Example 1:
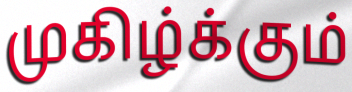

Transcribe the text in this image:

முகிழ்க்கும்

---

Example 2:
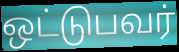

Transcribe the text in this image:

ஒட்டுபவர்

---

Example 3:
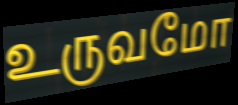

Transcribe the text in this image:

உருவமோ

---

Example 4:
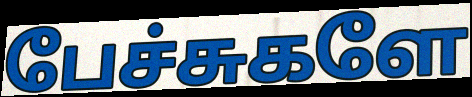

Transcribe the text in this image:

பேச்சுகளே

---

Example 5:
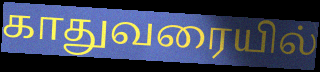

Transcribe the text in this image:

காதுவரையில்